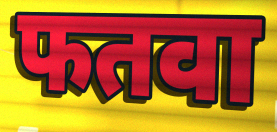
फतवा